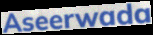
Aseerwada